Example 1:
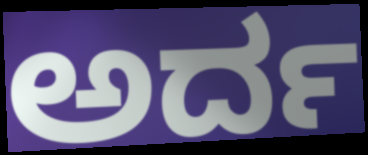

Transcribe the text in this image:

ಅರ್ದ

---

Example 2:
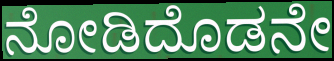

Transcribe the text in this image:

ನೋಡಿದೊಡನೇ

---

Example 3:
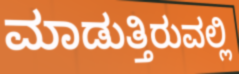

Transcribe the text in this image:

ಮಾಡುತ್ತಿರುವಲ್ಲಿ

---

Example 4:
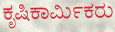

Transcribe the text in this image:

ಕೃಷಿಕಾರ್ಮಿಕರು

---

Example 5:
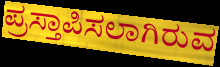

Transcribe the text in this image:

ಪ್ರಸ್ತಾಪಿಸಲಾಗಿರುವ